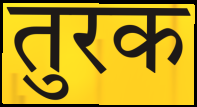
तुरक